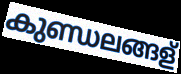
കുണ്ഡലങ്ങള്